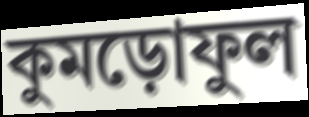
কুমড়োফুল